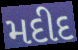
મદીદ